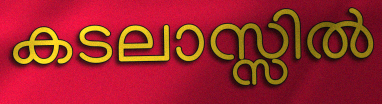
കടലാസ്സിൽ